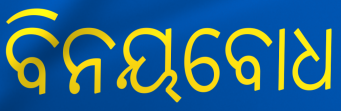
ବିନୟବୋଧ